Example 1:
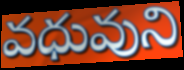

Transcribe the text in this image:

వధువుని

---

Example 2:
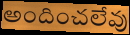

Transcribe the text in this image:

అందించలేవు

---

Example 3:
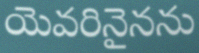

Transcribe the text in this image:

యెవరినైనను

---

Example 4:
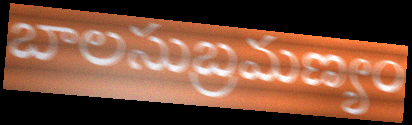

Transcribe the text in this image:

బాలసుబ్రమణ్యం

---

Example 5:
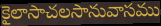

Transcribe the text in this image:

కైలాసాచలసానువాసము